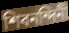
শিবনন্দিনী